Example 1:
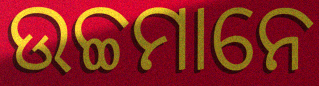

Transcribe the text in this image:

ଉଚ୍ଚମାନେ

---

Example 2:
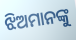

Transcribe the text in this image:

ଝିଅମାନଙ୍କୁ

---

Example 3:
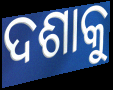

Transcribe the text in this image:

ଦଶାକୁ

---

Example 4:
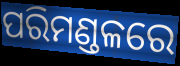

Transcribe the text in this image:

ପରିମଣ୍ଡଳରେ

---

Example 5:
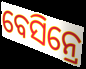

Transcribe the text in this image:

ବେସିନ୍ରେ